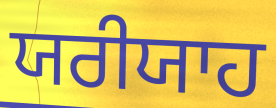
ਯਰੀਯਾਹ